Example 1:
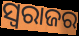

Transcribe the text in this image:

ସ୍ବରାଜର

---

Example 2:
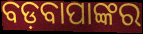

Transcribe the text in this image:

ବଡ଼ବାପାଙ୍କର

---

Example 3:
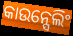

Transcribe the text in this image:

କାଉନ୍ସେଲିଂ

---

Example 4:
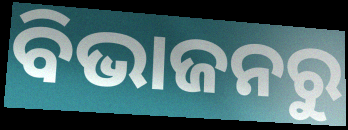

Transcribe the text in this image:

ବିଭାଜନରୁ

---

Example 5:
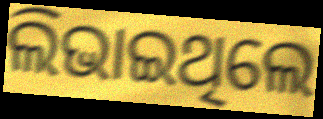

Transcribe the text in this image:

ଲିଭାଇଥିଲେ